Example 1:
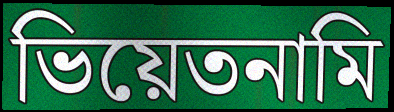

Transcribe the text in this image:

ভিয়েতনামি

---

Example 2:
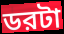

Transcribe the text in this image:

ডরটা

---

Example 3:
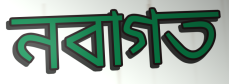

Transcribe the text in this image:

নবাগত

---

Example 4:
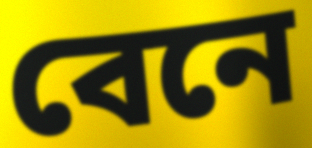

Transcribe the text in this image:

বেনে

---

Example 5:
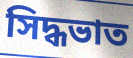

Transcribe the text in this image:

সিদ্ধভাত